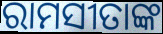
ରାମସୀତାଙ୍କ